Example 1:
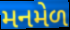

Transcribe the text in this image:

મનમેળ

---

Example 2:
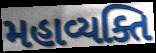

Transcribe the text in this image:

મહાવ્યક્તિ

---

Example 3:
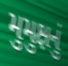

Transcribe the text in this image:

મુમુક્ષનું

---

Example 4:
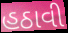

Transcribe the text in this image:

હઠાવી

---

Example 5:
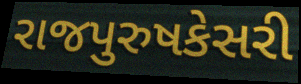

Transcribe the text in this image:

રાજપુરુષકેસરી